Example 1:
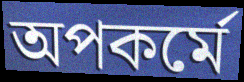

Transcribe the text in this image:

অপকর্মে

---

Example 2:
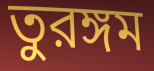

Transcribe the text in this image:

তুরঙ্গম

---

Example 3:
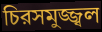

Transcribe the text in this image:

চিরসমুজ্জ্বল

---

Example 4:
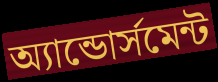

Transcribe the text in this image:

অ্যান্ডোর্সমেন্ট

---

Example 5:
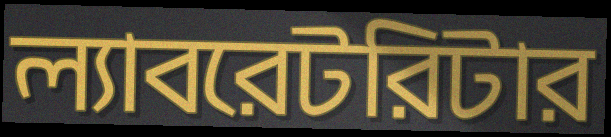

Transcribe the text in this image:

ল্যাবরেটরিটার